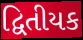
દ્વિતીયક